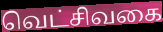
வெட்சிவகை